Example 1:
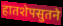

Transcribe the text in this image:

हातशेपसुतने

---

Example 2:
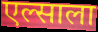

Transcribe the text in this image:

एल्साला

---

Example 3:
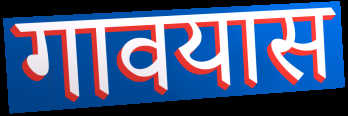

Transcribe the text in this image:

गावयास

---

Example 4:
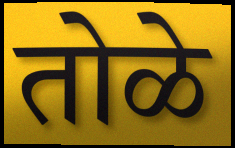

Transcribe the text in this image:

तोळे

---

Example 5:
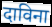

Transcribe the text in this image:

दाविना